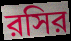
রসির